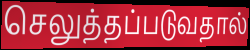
செலுத்தப்படுவதால்